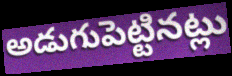
అడుగుపెట్టినట్లు